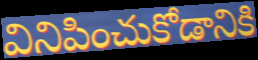
వినిపించుకోడానికి